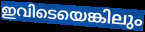
ഇവിടെയെങ്കിലും